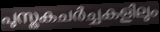
പുസ്തകചർച്ചകളിലും